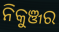
ନିକୁଞ୍ଜର